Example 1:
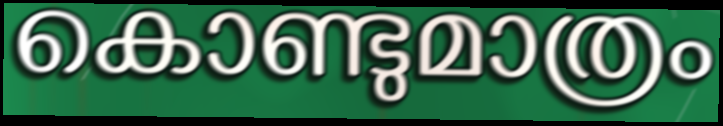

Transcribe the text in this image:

കൊണ്ടുമാത്രം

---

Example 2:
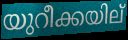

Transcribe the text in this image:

യുറീക്കയില്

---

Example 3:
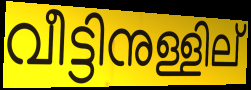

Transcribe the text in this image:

വീട്ടിനുള്ളില്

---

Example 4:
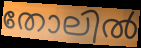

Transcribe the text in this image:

തോലിൽ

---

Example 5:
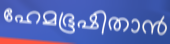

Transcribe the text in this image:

ഹേമഭൂഷിതാൻ